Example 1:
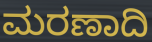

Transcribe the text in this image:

ಮರಣಾದಿ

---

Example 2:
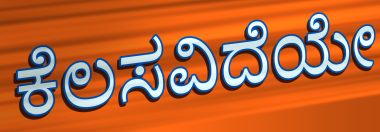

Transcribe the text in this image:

ಕೆಲಸವಿದೆಯೇ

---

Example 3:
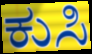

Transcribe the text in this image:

ಕುಸಿ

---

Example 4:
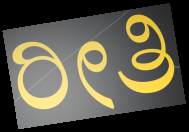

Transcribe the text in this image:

ರೀತಿ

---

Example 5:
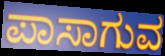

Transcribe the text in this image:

ಪಾಸಾಗುವ